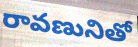
రావణునితో